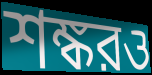
শঙ্করও